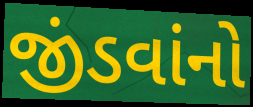
જીંડવાંનો